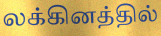
லக்கினத்தில்